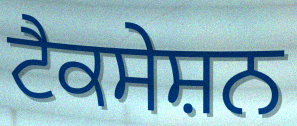
ਟੈਕਸੇਸ਼ਨ